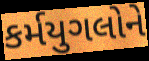
કર્મયુગલોને